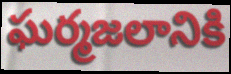
ఘర్మజలానికి